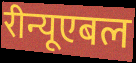
रीन्यूएबल